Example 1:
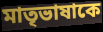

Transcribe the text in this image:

মাতৃভাষাকে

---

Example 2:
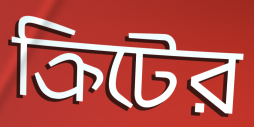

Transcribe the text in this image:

ক্রিটের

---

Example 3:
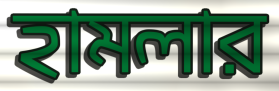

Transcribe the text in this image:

হামলার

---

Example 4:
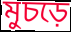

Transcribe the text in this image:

মুচড়ে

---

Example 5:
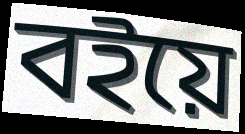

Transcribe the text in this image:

বইয়ে